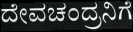
ದೇವಚಂದ್ರನಿಗೆ